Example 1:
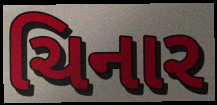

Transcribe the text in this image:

ચિનાર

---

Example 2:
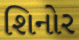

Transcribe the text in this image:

શિનોર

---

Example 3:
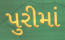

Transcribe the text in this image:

પુરીમાં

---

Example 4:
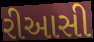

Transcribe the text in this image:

રીઆસી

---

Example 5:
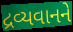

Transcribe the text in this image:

દ્રવ્યવાનને